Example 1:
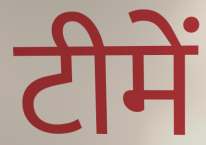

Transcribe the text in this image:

टीमें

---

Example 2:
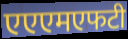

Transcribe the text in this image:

एएएमएफटी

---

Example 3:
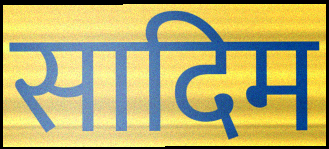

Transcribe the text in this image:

सादिम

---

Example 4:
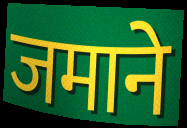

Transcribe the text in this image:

जमाने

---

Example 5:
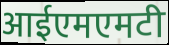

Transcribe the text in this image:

आईएमएमटी